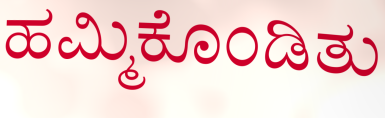
ಹಮ್ಮಿಕೊಂಡಿತು